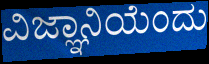
ವಿಜ್ಞಾನಿಯೆಂದು